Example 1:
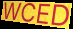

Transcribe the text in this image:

WCED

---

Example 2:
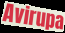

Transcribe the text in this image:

Avirupa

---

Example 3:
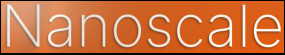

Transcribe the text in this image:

Nanoscale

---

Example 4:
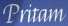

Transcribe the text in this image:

Pritam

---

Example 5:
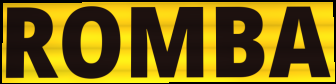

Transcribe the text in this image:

ROMBA